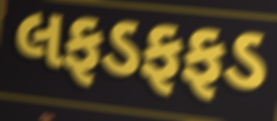
લફડફફડ